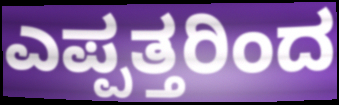
ಎಪ್ಪತ್ತರಿಂದ